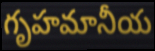
గృహమానీయ